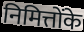
निमित्तोंके